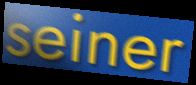
seiner